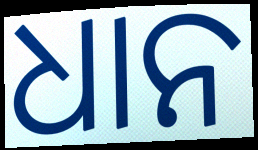
ଧାନ